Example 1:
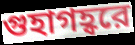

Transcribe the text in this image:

গুহাগহ্বরে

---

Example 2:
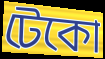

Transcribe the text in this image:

টেকো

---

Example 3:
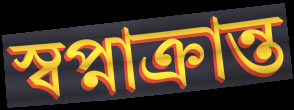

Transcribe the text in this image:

স্বপ্নাক্রান্ত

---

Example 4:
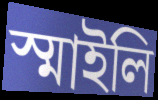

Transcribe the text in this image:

স্মাইলি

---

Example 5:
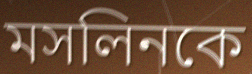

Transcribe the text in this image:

মসলিনকে